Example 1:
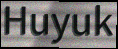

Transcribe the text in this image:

Huyuk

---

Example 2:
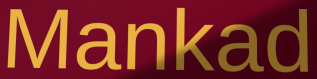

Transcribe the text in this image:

Mankad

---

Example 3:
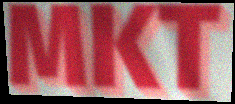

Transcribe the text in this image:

MKT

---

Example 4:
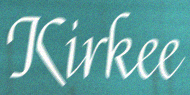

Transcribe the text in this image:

Kirkee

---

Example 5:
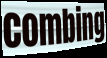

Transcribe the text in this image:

combing